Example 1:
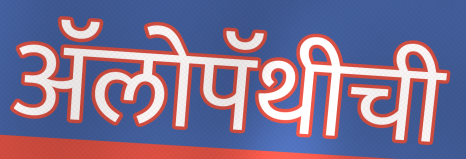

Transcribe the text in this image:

ॲलोपॅथीची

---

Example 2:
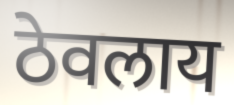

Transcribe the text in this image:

ठेवलाय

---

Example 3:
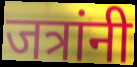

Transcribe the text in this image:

जत्रांनी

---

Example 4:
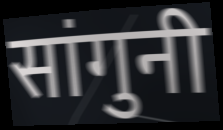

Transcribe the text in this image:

सांगुनी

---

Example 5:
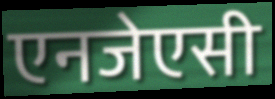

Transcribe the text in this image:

एनजेएसी